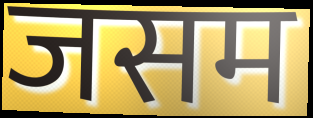
जसम